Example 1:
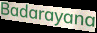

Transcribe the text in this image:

Badarayana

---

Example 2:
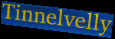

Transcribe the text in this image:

Tinnelvelly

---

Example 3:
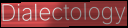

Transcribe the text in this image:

Dialectology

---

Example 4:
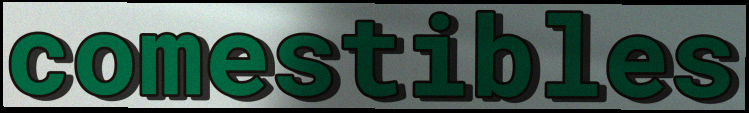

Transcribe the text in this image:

comestibles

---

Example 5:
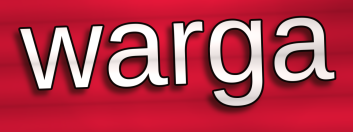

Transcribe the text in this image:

warga